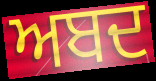
ਅਬਦ